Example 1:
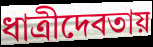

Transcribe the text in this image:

ধাত্রীদেবতায়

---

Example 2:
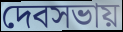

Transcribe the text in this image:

দেবসভায়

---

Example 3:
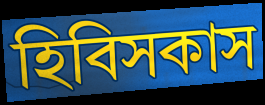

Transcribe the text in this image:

হিবিসকাস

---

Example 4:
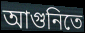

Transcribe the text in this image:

আগুনিতে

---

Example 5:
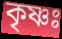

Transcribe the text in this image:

কৃষ্ণঃ